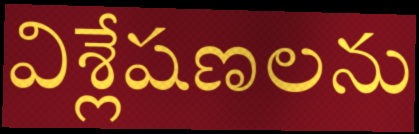
విశ్లేషణలను